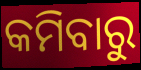
କମିବାରୁ